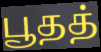
பூதத்